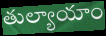
తుల్యాయాం